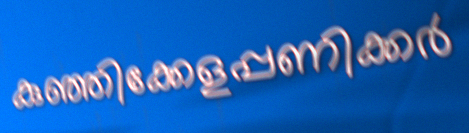
കുഞ്ഞിക്കേളപ്പണിക്കർ